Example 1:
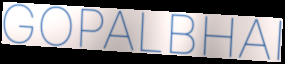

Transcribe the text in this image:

GOPALBHAI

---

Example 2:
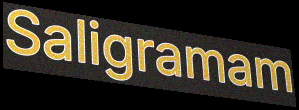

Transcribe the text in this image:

Saligramam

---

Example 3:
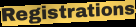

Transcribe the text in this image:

Registrations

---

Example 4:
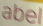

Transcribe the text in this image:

abel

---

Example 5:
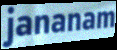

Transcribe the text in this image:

jananam